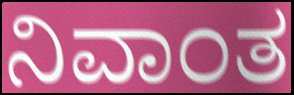
ನಿವಾಂತ